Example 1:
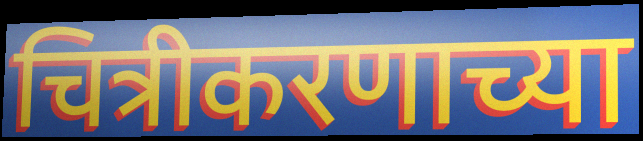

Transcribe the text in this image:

चित्रीकरणाच्या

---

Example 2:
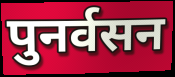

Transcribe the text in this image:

पुनर्वसन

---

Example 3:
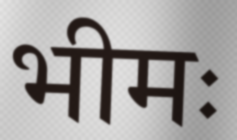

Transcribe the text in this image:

भीमः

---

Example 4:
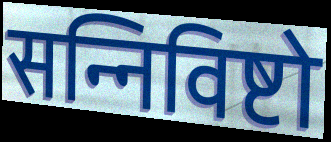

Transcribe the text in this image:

सन्निविष्टो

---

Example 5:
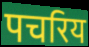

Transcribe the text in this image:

पचरिय